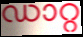
ഡാറ്റ